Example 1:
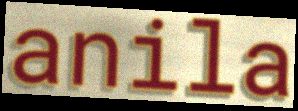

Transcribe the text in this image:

anila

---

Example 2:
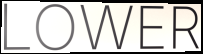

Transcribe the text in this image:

LOWER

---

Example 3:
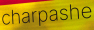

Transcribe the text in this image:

charpashe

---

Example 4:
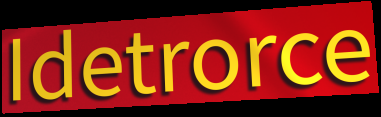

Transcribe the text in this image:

Idetrorce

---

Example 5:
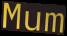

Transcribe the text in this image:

Mum